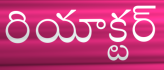
రియాక్టర్